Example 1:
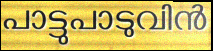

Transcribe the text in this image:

പാട്ടുപാടുവിൻ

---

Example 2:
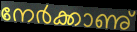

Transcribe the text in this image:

നേർക്കാണു്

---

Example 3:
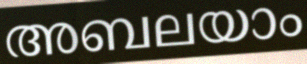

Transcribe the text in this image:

അബലയാം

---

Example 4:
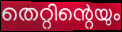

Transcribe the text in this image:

തെറ്റിന്റെയും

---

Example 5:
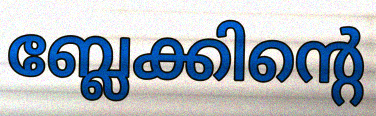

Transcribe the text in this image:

ബ്ലേക്കിന്റെ